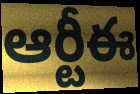
ఆర్టీఈ